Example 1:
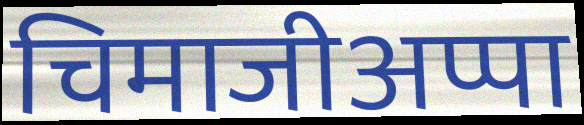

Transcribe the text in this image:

चिमाजीअप्पा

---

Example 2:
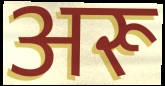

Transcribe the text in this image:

अरू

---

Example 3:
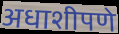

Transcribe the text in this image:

अधाशीपणे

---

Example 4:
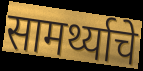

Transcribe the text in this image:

सामर्थ्याचे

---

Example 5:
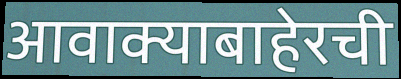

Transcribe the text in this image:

आवाक्याबाहेरची